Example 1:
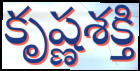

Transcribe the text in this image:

కృష్ణశక్తి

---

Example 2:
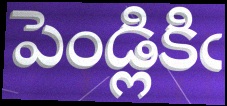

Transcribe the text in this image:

పెండ్లికిఁ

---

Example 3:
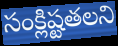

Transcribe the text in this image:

సంక్లిష్టతలని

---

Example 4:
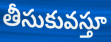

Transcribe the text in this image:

తీసుకువస్తూ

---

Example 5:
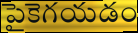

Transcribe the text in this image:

పైకెగయడం